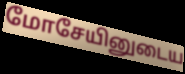
மோசேயினுடைய